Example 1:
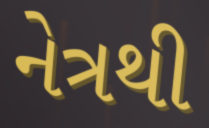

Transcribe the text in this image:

નેત્રથી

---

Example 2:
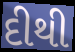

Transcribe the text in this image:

દીથી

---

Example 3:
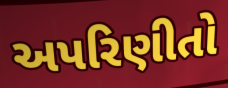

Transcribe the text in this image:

અપરિણીતો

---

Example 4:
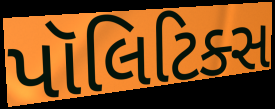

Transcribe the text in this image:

પૉલિટિક્સ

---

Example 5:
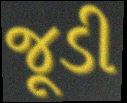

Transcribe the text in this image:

જૂડી